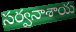
సర్వనాశాయ